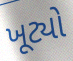
ખૂટ્યો